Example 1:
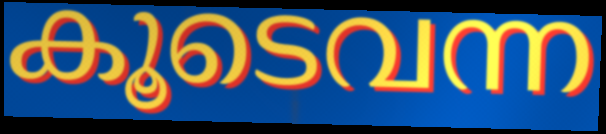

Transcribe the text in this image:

കൂടെവന്ന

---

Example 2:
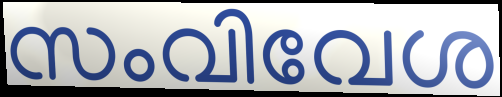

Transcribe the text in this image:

സംവിവേശ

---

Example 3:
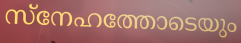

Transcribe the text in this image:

സ്നേഹത്തോടെയും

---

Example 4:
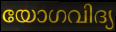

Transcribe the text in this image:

യോഗവിദ്യ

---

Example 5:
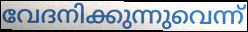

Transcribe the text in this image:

വേദനിക്കുന്നുവെന്ന്